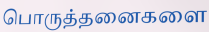
பொருத்தனைகளை